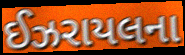
ઈઝરાયલના